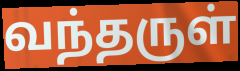
வந்தருள்